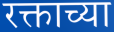
रक्ताच्या